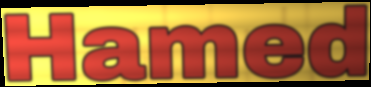
Hamed